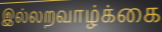
இல்லறவாழ்க்கை